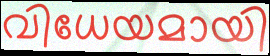
വിധേയമായി